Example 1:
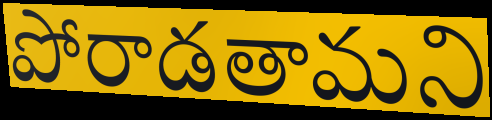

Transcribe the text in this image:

పోరాడతామని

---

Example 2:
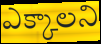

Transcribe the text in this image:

ఎక్కాలని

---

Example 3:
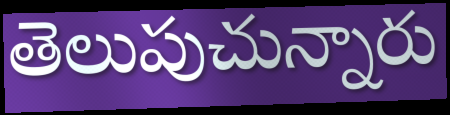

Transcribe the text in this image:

తెలుపుచున్నారు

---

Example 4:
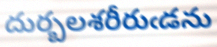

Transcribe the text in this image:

దుర్బలశరీరుఁడను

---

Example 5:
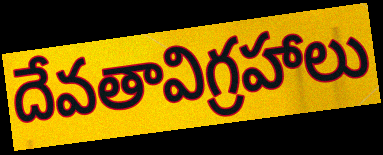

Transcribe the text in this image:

దేవతావిగ్రహాలు